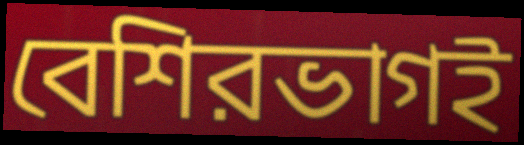
বেশিরভাগই